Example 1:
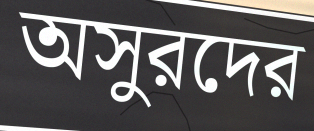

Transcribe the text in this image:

অসুরদের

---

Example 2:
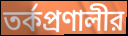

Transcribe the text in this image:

তর্কপ্রণালীর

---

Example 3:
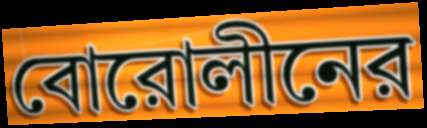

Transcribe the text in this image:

বোরোলীনের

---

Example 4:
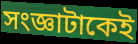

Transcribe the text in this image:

সংজ্ঞাটাকেই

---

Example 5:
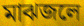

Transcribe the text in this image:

মাঝজলে